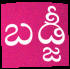
బడ్జీ